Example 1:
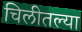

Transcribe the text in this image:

चिलीतल्या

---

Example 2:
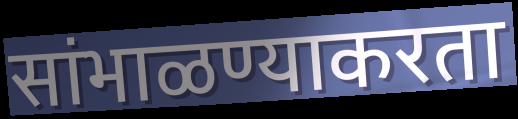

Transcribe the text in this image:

सांभाळण्याकरता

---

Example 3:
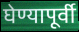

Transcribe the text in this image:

घेण्यापूर्वी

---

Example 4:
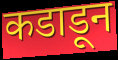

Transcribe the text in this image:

कडाडून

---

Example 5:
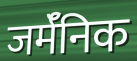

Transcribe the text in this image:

जर्मॅनिक